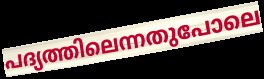
പദ്യത്തിലെന്നതുപോലെ